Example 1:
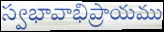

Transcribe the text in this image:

స్వభావాభిప్రాయము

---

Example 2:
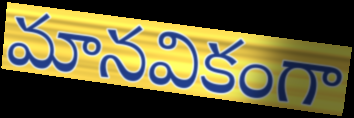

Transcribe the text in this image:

మానవికంగా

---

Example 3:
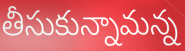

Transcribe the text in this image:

తీసుకున్నామన్న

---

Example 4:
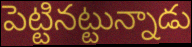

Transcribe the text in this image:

పెట్టినట్టున్నాడు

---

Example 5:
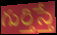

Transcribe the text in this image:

గుర్తిస్తే